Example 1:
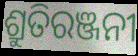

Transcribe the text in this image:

ଶ୍ରୁତିରଞ୍ଜନୀ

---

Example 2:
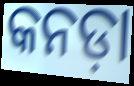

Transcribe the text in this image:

କନଡ଼ା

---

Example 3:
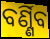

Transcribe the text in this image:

ବର୍ଣ୍ଣିବ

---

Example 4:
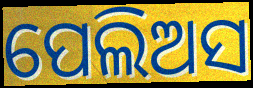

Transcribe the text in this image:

ପେଲିଅସ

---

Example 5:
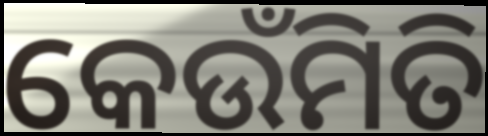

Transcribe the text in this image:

କେଉଁମିତି